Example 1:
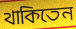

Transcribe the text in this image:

থাকিতেন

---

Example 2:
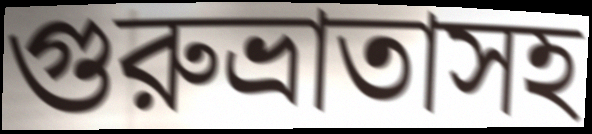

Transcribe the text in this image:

গুরুভ্রাতাসহ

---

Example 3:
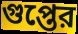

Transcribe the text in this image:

গুপ্তের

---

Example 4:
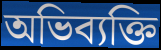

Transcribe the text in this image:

অভিব্যক্তি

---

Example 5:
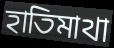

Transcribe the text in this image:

হাতিমাথা